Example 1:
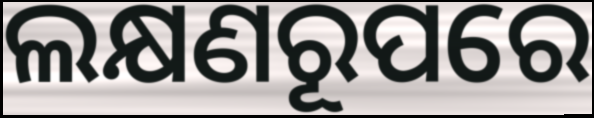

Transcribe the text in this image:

ଲକ୍ଷଣରୂପରେ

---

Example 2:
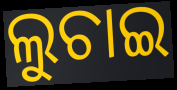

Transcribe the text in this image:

ଲୁଚାଇ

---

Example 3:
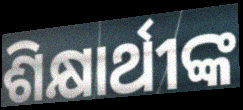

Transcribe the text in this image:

ଶିକ୍ଷାର୍ଥୀଙ୍କ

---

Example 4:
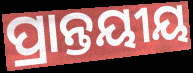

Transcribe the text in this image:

ପ୍ରାନ୍ତୟୀୟ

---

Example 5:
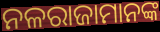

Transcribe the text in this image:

ନଳରାଜାମାନଙ୍କ